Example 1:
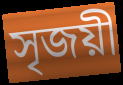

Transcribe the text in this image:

সৃজয়ী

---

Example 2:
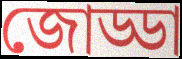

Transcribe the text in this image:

জোড্ডা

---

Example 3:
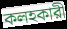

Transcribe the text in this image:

কলহকারী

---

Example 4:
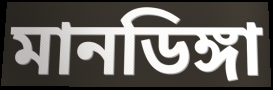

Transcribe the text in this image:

মানডিঙ্গা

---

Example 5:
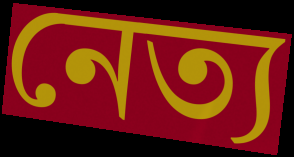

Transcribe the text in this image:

নেত্য